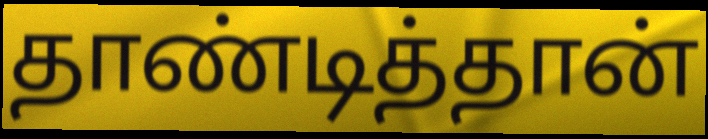
தாண்டித்தான்